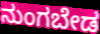
ನುಂಗಬೇಡ